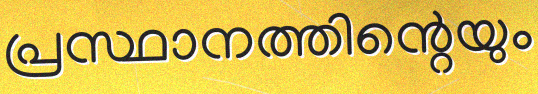
പ്രസ്ഥാനത്തിന്റെയും